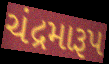
ચંદ્રમારૂપ